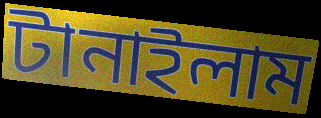
টানাইলাম